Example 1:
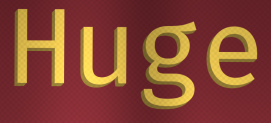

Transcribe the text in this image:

Huge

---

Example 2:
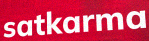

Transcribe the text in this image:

satkarma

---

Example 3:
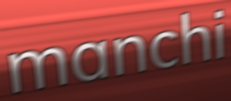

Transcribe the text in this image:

manchi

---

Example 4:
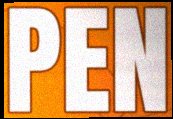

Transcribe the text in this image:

PEN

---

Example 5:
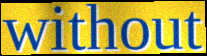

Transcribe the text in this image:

without